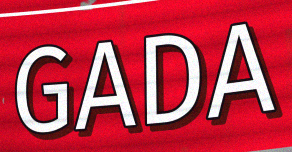
GADA